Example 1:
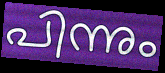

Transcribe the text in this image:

പിന്നും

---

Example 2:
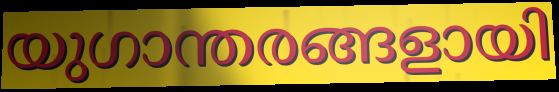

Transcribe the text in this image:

യുഗാന്തരങ്ങളായി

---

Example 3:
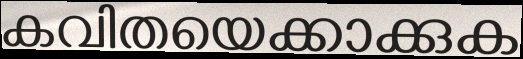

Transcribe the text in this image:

കവിതയെക്കാക്കുക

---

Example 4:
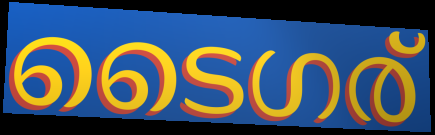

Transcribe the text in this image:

ടൈഗര്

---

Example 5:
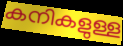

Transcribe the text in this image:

കനികളുള്ള